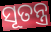
ସୂତନ୍ତ୍ର